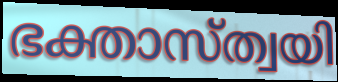
ഭക്താസ്ത്വയി